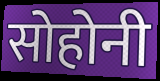
सोहोनी